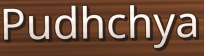
Pudhchya